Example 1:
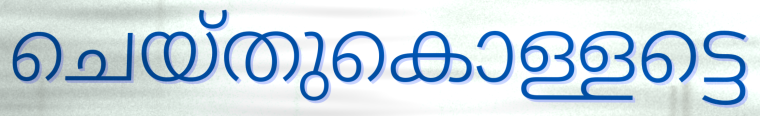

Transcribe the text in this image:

ചെയ്തുകൊള്ളട്ടെ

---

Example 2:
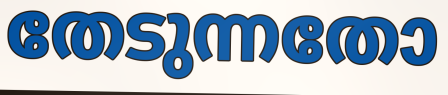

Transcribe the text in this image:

തേടുന്നതോ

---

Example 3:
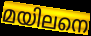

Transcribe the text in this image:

മയിലനെ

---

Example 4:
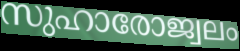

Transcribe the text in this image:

സുഹാരോജ്വലം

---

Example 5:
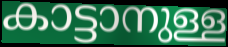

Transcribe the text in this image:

കാട്ടാനുള്ള